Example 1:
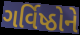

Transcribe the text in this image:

ગર્વિષ્ઠોને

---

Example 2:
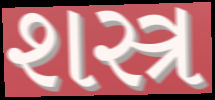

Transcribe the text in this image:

શસ્ત્ર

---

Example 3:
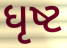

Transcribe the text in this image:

ધૃષ્ટ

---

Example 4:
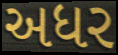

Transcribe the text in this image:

અધર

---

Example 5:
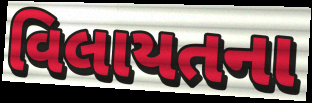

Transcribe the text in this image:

વિલાયતના